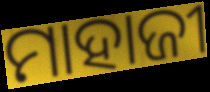
ମାହାଜୀ